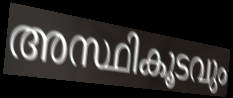
അസ്ഥികൂടവും